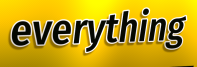
everything